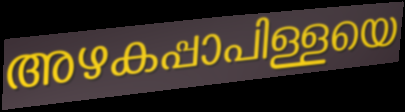
അഴകപ്പാപിള്ളയെ